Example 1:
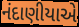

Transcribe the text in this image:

નંદાણીયાએ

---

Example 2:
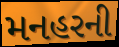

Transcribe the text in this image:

મનહરની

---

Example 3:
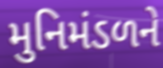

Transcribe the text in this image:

મુનિમંડળને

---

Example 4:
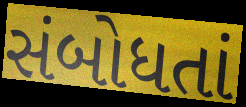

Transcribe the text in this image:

સંબોધતાં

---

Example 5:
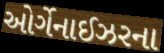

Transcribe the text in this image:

ઓર્ગેનાઈઝરના